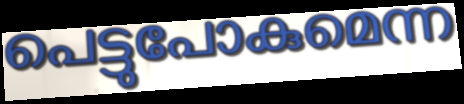
പെട്ടുപോകുമെന്ന